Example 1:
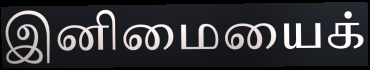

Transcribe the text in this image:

இனிமையைக்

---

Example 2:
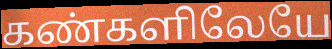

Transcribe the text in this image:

கண்களிலேயே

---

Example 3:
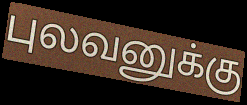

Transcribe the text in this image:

புலவனுக்கு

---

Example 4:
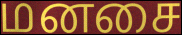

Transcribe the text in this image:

மனசை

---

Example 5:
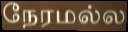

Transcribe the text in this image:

நேரமல்ல